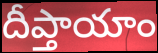
దీప్తాయాం